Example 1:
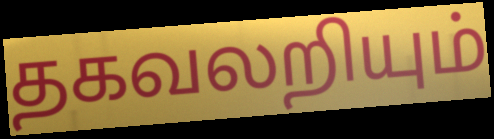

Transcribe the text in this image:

தகவலறியும்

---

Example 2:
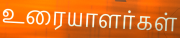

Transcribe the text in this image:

உரையாளர்கள்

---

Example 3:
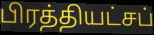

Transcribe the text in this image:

பிரத்தியட்சப்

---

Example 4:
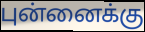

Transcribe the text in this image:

புன்னைக்கு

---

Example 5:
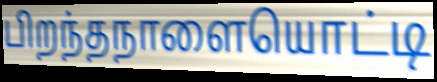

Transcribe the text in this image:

பிறந்தநாளையொட்டி